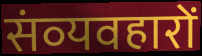
संव्‍यवहारों